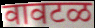
वावटळ